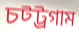
চট্ট্রগাম